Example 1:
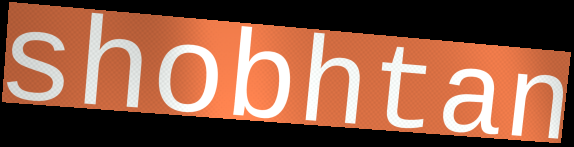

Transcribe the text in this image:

shobhtan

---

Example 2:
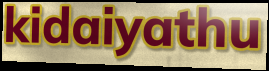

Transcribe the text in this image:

kidaiyathu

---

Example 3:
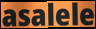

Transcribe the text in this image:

asalele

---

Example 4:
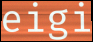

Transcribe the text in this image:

eigi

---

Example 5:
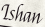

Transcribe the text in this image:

Ishan